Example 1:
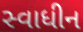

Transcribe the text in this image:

સ્વાધીન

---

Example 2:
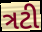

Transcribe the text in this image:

ત્રટી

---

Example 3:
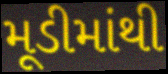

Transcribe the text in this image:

મૂડીમાંથી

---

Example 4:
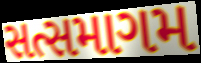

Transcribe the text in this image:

સત્સમાગમ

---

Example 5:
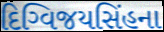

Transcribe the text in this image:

દિગ્વિજયસિંહના